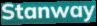
Stanway